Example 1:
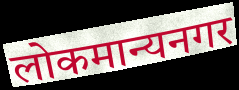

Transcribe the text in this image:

लोकमान्यनगर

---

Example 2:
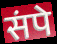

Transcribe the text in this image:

संपे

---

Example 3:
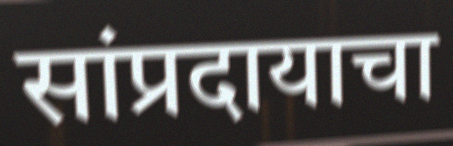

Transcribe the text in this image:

सांप्रदायाचा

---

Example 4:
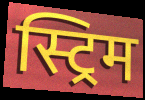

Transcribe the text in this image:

स्ट्रिम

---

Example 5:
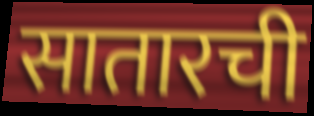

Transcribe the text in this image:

सातारची